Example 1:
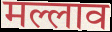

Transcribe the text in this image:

मल्लाव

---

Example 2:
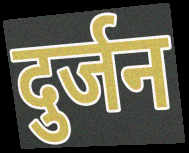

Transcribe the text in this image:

दुर्जन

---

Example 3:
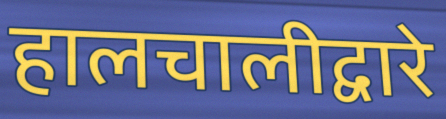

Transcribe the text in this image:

हालचालीद्वारे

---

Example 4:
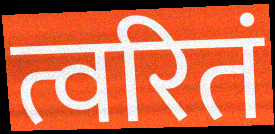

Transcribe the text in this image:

त्वरितं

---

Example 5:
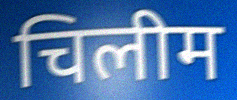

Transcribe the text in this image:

चिलीम